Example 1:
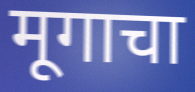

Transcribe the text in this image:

मूगाचा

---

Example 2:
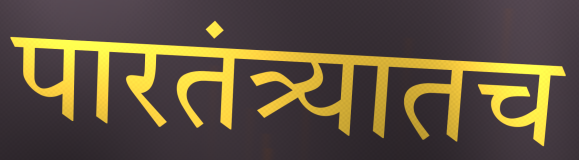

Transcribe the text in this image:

पारतंत्र्यातच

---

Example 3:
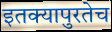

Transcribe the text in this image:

इतक्यापुरतेच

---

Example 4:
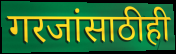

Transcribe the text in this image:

गरजांसाठीही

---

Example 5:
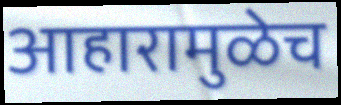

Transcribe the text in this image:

आहारामुळेच